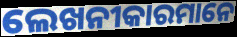
ଲେଖନୀକାରମାନେ